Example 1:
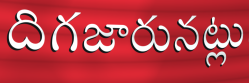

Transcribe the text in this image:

దిగజారునట్లు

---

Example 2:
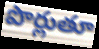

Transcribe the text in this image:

పొర్లుతూ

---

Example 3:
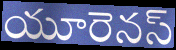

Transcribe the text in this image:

యూరెనస్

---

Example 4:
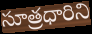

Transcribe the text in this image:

సూత్రధారిని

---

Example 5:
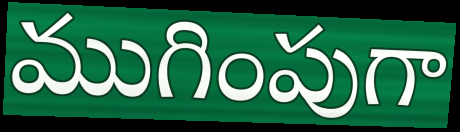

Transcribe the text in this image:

ముగింపుగా